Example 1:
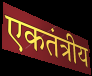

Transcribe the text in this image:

एकतंत्रीय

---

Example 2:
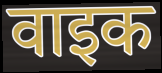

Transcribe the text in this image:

वाइक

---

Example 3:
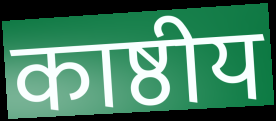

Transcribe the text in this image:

काष्ठीय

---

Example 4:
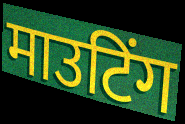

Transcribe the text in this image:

माउटिंग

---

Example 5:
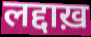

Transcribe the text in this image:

लद्दाख़